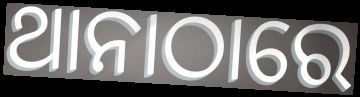
ଥାନାଠାରେ